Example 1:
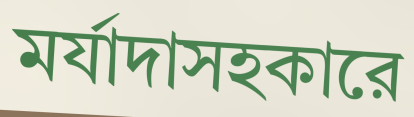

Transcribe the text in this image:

মর্যাদাসহকারে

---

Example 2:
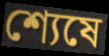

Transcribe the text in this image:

শ্যেষে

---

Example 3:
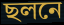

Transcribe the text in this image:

ছলনে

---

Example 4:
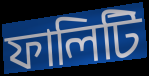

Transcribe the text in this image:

ফালিটি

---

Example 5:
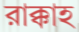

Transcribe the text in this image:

রাক্কাহ